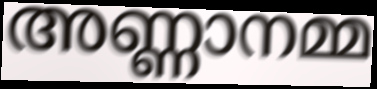
അണ്ണാനമ്മ